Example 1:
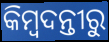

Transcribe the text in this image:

କିମ୍ବଦନ୍ତୀରୁ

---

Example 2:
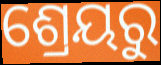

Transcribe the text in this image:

ଶ୍ରେୟରୁ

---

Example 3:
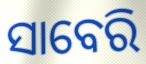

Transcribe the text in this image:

ସାବେରି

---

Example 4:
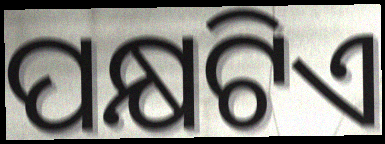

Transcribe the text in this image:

ପକ୍ଷଟିଏ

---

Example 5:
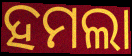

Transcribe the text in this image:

ହମଲା